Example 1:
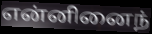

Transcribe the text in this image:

என்னினைந்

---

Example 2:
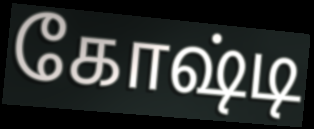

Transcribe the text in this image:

கோஷ்டி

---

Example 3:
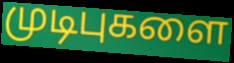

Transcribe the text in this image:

முடிபுகளை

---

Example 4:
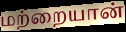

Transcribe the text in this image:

மற்றையான்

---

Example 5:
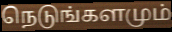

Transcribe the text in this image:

நெடுங்களமும்